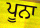
ਪੂਨਾ